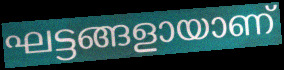
ഘട്ടങ്ങളായാണ്